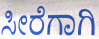
ಸೀರೆಗಾಗಿ